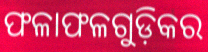
ଫଳାଫଳଗୁଡ଼ିକର